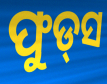
ଫୁଡ୍‌ସ